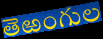
తెఱంగుల